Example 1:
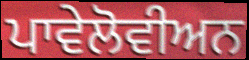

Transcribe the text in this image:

ਪਾਵੇਲੋਵੀਅਨ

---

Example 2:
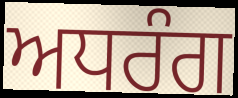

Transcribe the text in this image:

ਅਧਰੰਗ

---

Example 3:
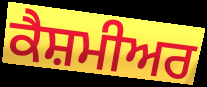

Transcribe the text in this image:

ਕੈਸ਼ਮੀਅਰ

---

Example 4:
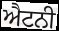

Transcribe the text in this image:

ਐਟਨੀ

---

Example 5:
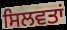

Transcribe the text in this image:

ਸਿਲਵਤਾਂ